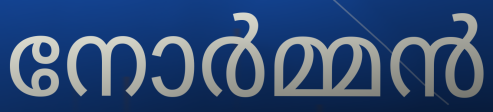
നോർമ്മൻ